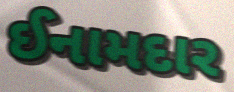
ઈનામદાર